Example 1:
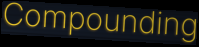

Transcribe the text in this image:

Compounding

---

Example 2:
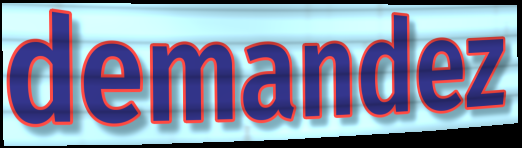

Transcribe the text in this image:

demandez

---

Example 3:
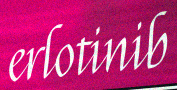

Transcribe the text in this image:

erlotinib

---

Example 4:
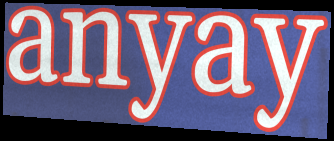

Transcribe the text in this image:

anyay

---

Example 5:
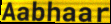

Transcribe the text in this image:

Aabhaar